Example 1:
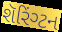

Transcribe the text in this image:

શૅરિંગ્ટન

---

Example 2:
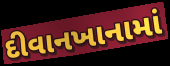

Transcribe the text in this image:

દીવાનખાનામાં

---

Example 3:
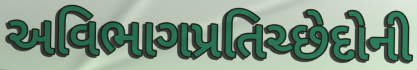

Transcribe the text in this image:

અવિભાગપ્રતિચ્છેદોની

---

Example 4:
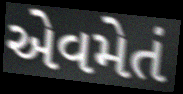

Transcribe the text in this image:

એવમેતં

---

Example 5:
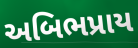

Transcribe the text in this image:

અબિભપ્રાય